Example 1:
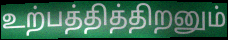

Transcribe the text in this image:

உற்பத்தித்திறனும்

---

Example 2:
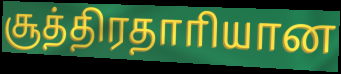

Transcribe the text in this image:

சூத்திரதாரியான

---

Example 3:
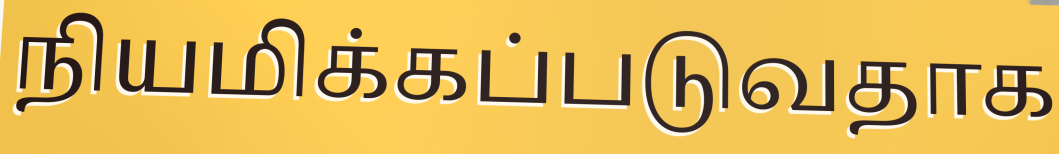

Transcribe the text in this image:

நியமிக்கப்படுவதாக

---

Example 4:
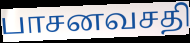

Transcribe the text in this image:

பாசனவசதி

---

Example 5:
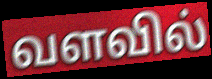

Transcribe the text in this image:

வளவில்